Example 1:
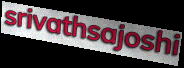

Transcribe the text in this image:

srivathsajoshi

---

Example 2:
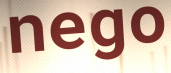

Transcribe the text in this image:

nego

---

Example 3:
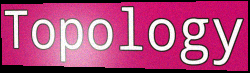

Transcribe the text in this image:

Topology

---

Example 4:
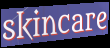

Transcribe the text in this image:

skincare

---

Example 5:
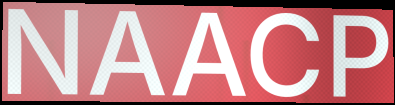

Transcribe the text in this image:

NAACP